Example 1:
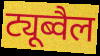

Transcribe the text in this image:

ट्यूब्वैल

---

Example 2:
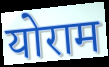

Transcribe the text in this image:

योराम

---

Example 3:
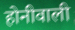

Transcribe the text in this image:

होनीवाली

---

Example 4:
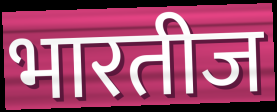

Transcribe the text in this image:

भारतीज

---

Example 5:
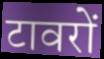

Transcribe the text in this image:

टावरों